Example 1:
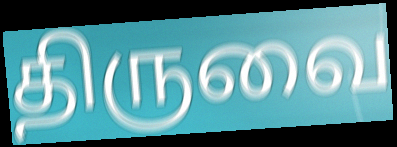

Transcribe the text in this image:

திருவை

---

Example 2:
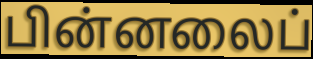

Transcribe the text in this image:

பின்னலைப்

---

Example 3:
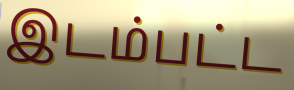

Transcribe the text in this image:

இடம்பட்ட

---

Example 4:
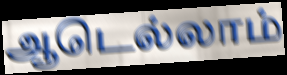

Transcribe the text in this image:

ஆடெல்லாம்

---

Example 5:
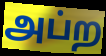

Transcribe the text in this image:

அப்ற